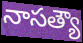
నాసత్యౌ